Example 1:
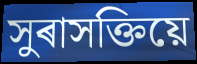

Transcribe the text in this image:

সুৰাসক্তিয়ে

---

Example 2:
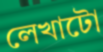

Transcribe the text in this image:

লেখাটো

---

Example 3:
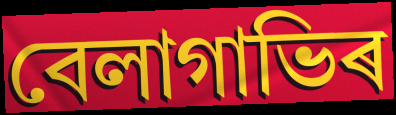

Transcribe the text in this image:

বেলাগাভিৰ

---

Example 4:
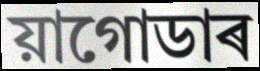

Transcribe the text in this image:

য়াগোডাৰ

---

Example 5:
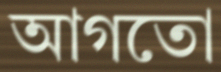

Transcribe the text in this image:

আগতো